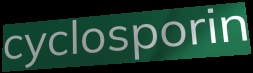
cyclosporin